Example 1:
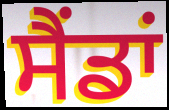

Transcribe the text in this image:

ਸੈਂਡਾਂ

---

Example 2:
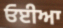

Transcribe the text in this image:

ਓਈਆ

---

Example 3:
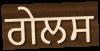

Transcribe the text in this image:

ਗੇਲਸ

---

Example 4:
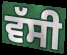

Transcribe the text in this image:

ਵੱਸੀ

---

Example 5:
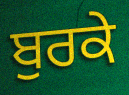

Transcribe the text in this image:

ਬੁਰਕੇ